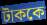
টাককে